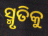
ସ୍ମୃତିକୁ